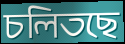
চলিতছে